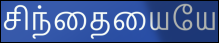
சிந்தையையே